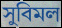
সুবিমল